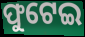
ଫୁଟେଇ